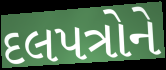
દલપત્રોને